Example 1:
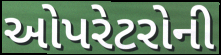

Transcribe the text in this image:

ઓપરેટરોની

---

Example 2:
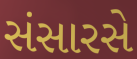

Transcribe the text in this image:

સંસારસે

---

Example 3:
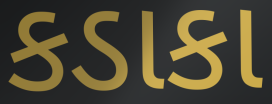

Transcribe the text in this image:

કડાકા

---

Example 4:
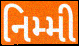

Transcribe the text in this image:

નિમ્મી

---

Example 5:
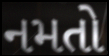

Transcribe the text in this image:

નમતો